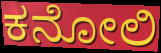
ಕನೋಲಿ